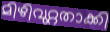
മിഴിവുറ്റതാക്കി